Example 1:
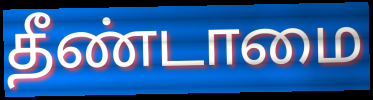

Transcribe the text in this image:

தீண்டாமை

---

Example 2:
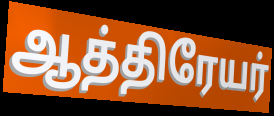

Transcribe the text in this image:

ஆத்திரேயர்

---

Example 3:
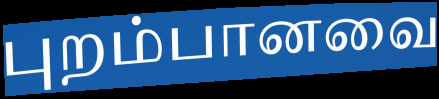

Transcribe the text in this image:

புறம்பானவை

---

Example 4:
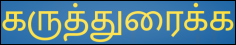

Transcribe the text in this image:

கருத்துரைக்க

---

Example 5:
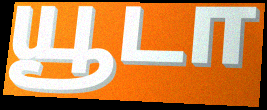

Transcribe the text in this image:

யூடா